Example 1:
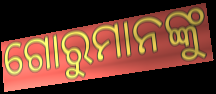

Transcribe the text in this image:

ଗୋରୁମାନଙ୍କୁ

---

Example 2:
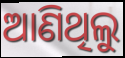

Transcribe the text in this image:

ଆଣିଥିଲୁ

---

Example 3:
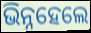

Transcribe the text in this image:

ଭିନ୍ନହେଲେ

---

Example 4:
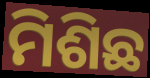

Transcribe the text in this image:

ମିଶିଛ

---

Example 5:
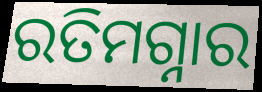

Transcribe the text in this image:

ରତିମଗ୍ନାର